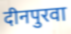
दीनपुरवा